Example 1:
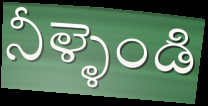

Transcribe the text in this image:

నీళ్ళెండి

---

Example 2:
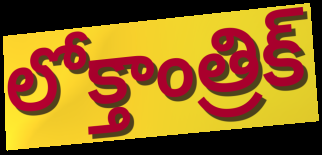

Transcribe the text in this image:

లోక్తాంత్రిక్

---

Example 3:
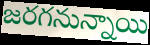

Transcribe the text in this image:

జరగనున్నాయి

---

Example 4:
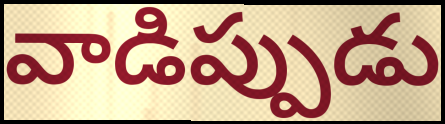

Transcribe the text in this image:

వాడిప్పుడు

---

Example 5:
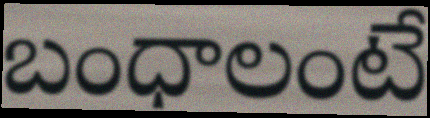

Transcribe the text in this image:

బంధాలంటే